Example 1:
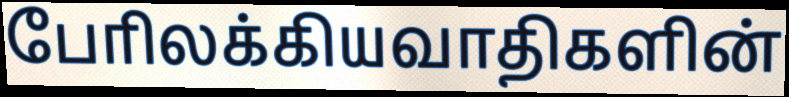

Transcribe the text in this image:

பேரிலக்கியவாதிகளின்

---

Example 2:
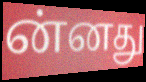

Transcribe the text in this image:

ன்னது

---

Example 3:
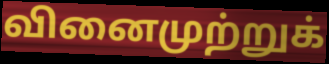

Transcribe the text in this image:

வினைமுற்றுக்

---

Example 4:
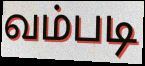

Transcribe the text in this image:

வம்படி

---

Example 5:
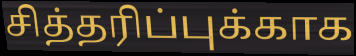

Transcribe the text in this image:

சித்தரிப்புக்காக